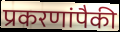
प्रकरणांपैकी